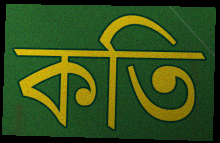
কতি